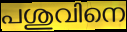
പശുവിനെ